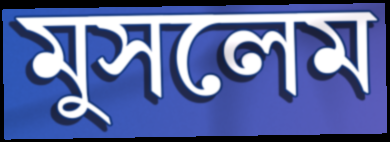
মুসলেম